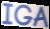
IGA